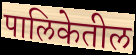
पालिकेतील